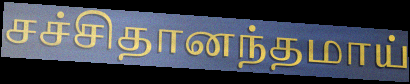
சச்சிதானந்தமாய்